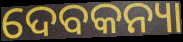
ଦେବକନ୍ୟା